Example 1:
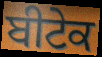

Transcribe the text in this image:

ਬੀਟੇਕ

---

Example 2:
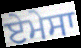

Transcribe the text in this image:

ਏਮੇਸਾ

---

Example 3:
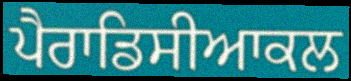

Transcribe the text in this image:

ਪੈਰਾਡਿਸੀਆਕਲ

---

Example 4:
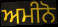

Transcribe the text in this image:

ਅਮੀਨੋ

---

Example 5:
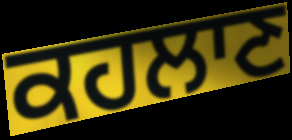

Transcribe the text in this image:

ਕਹਲਾਣ